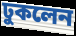
ঢুকলেন